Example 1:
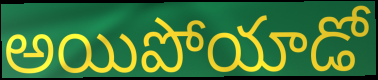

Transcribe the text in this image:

అయిపోయాడో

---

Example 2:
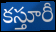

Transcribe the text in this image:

కస్తూరీ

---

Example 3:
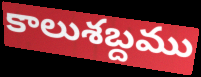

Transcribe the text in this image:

కాలుశబ్దము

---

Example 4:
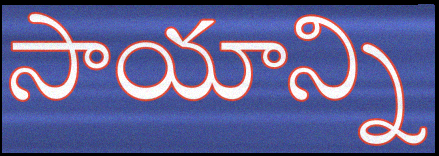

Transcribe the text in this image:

సాయాన్ని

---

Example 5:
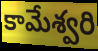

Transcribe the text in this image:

కామేశ్వరి